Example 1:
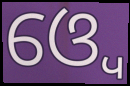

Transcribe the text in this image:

ଓ୍ବେ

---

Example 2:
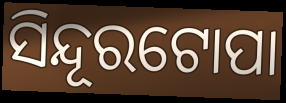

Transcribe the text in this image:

ସିନ୍ଦୂରଟୋପା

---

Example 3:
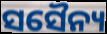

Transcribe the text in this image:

ସସୈନ୍ୟ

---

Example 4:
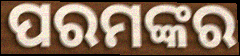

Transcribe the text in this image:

ପରମଙ୍କର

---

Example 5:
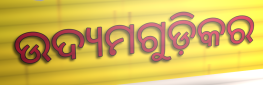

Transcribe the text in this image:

ଉଦ୍ୟମଗୁଡ଼ିକର